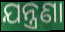
ଯନ୍ତ୍ରଣା